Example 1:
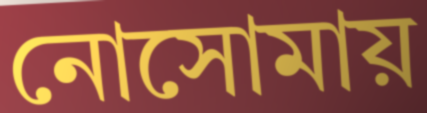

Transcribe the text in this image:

নোসোমায়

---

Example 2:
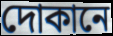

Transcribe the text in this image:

দোকানে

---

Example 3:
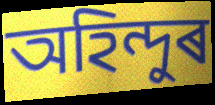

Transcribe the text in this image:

অহিন্দুৰ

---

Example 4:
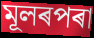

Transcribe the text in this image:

মূলৰপৰা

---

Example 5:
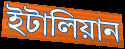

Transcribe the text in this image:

ইটালিয়ান